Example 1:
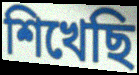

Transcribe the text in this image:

শিখেছি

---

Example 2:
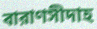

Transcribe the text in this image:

বারাণসীদাহ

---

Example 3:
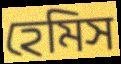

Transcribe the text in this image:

হেমিস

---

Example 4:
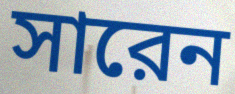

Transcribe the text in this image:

সারেন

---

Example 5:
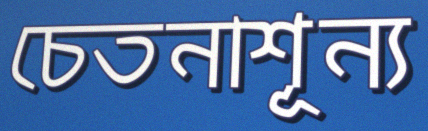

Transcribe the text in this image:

চেতনাশূন্য